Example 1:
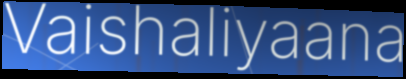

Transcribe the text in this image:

Vaishaliyaana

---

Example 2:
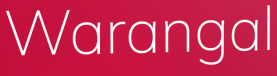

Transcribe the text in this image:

Warangal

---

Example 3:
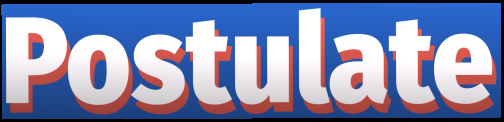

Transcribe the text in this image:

Postulate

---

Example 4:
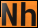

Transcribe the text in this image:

Nh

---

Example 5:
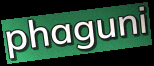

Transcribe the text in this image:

phaguni